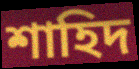
শাহিদ